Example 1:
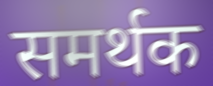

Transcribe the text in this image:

समर्थक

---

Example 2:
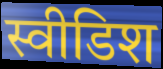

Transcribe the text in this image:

स्वीडिश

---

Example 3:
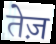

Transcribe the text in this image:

तेज़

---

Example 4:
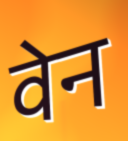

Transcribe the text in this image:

वेन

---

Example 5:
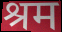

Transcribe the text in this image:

श्रम